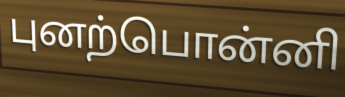
புனற்பொன்னி